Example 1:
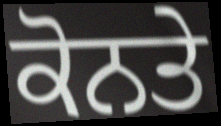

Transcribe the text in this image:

ਕੋਨਤੇ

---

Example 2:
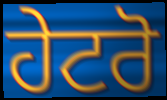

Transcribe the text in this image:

ਹੇਟਰੋ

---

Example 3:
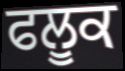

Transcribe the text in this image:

ਫਲੂਕ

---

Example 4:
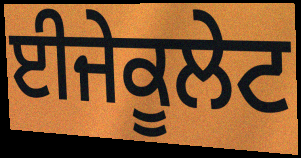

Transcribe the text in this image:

ਈਜੇਕੂਲੇਟ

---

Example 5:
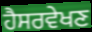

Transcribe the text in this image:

ਹੈਸਰਵੇਖਣ